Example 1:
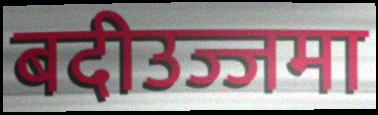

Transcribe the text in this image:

बदीउज्जमा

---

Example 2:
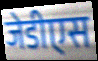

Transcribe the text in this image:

जेडीएस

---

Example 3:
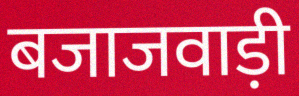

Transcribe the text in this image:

बजाजवाड़ी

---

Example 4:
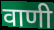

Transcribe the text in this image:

वाणी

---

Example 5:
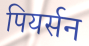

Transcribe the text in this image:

पियर्सन